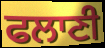
ਫਲਾਣੀ